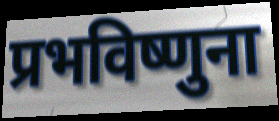
प्रभविष्णुना